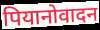
पियानोवादन